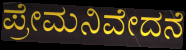
ಪ್ರೇಮನಿವೇದನೆ